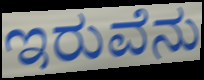
ಇರುವೆನು